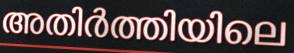
അതിർത്തിയിലെ